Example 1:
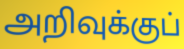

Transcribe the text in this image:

அறிவுக்குப்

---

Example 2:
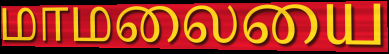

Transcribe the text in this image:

மாமலையை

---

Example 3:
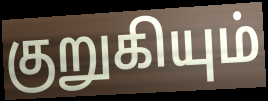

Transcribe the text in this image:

குறுகியும்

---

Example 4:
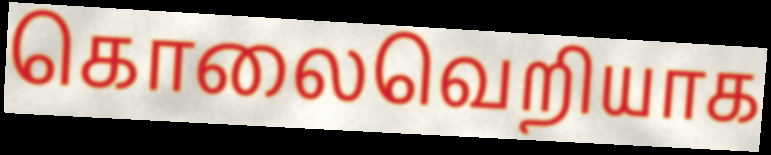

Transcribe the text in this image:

கொலைவெறியாக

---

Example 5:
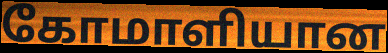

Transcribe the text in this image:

கோமாளியான